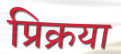
प्रिक्रया